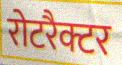
रोटरैक्टर